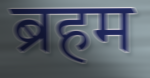
ब्रहम